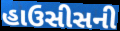
હાઉસીસની